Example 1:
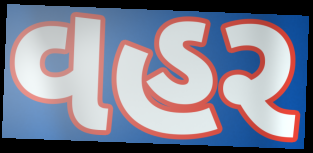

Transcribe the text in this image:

વહર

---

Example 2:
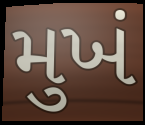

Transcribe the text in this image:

મુખં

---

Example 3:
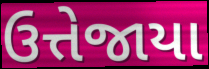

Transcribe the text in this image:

ઉત્તેજાયા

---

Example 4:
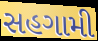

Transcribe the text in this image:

સહગામી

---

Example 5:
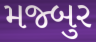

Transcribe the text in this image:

મજ્બુર